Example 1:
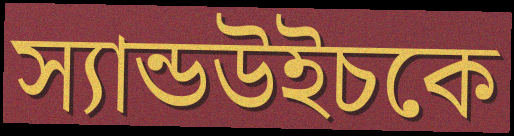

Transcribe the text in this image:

স্যান্ডউইচকে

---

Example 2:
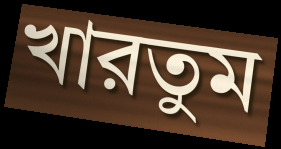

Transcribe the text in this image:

খারতুম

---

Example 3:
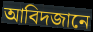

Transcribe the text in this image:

আবিদজানে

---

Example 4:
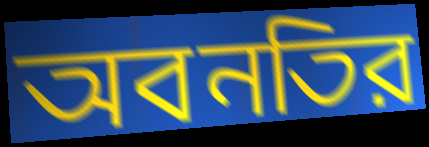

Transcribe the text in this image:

অবনতির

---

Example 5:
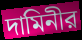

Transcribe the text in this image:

দামিনীর